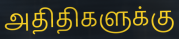
அதிதிகளுக்கு